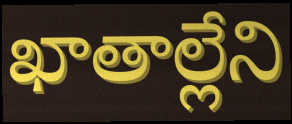
ఖాతాల్లేని